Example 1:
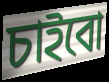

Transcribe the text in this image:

চাইবো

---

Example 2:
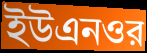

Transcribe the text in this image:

ইউএনওর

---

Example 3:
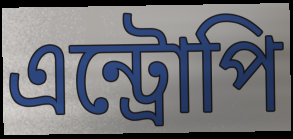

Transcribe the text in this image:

এন্ট্রোপি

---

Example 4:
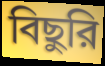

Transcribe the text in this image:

বিছুরি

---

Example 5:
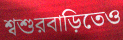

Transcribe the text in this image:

শ্বশুরবাড়িতেও